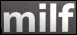
milf